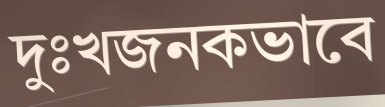
দুঃখজনকভাবে